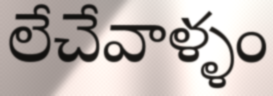
లేచేవాళ్ళం